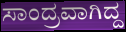
ಸಾಂದ್ರವಾಗಿದ್ದ